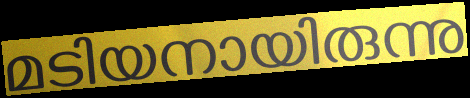
മടിയനായിരുന്നു